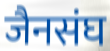
जैनसंघ